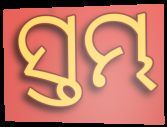
ସ୍ତମ୍ଭ